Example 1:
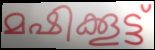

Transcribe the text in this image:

മഷിക്കൂട്ട്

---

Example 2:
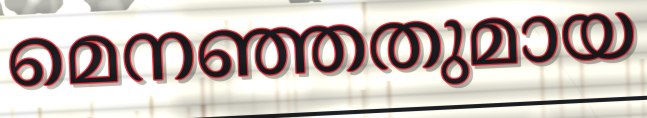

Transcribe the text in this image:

മെനഞ്ഞതുമായ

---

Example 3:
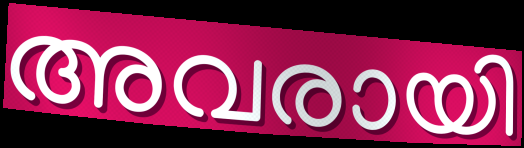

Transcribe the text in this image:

അവരായി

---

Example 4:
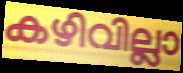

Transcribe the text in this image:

കഴിവില്ലാ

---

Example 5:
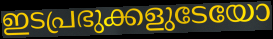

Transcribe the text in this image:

ഇടപ്രഭുക്കളുടേയോ